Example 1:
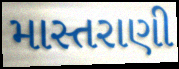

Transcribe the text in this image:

માસ્તરાણી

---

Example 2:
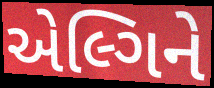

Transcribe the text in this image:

એલ્ગિને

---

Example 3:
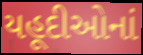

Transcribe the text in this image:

યહૂદીઓનાં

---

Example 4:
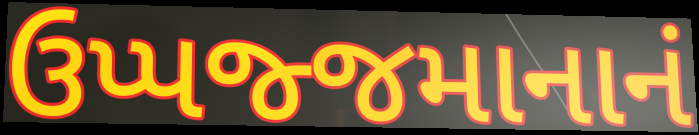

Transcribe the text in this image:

ઉપ્પજ્જમાનાનં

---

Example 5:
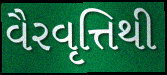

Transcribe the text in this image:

વૈરવૃત્તિથી